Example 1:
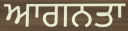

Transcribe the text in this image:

ਆਗਨਤਾ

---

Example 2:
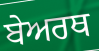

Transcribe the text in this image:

ਬੇਅਰਥ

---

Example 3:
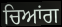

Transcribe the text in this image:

ਚਿਆਂਗ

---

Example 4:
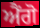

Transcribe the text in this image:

ਐਂਗੋ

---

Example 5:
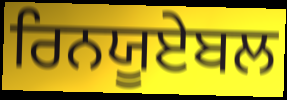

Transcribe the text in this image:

ਰਿਨਯੂਏਬਲ